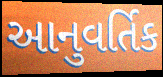
આનુવર્તિક